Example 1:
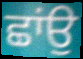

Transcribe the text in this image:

ਛਾਂਉ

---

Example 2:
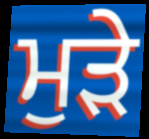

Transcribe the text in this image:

ਮੁੜੇ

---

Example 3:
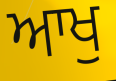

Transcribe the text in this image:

ਆਖੁ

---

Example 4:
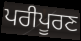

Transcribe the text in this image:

ਪਰੀਪੂਰਣ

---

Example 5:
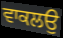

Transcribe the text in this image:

ਵਾਕਲਉ